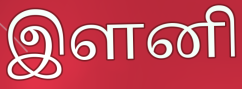
இளனி